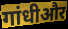
गांधीऔर